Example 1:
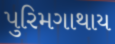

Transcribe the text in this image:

પુરિમગાથાય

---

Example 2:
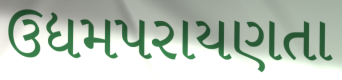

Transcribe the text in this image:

ઉદ્યમપરાયણતા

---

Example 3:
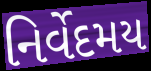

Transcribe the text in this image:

નિર્વેદમય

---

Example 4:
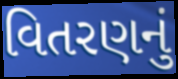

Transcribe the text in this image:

વિતરણનું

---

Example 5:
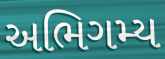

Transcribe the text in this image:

અભિગમ્ય